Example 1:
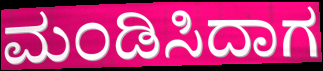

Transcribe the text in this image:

ಮಂಡಿಸಿದಾಗ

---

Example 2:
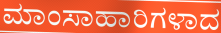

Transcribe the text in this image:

ಮಾಂಸಾಹಾರಿಗಳಾದ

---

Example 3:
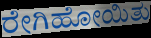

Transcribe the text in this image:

ರೇಗಿಹೋಯಿತು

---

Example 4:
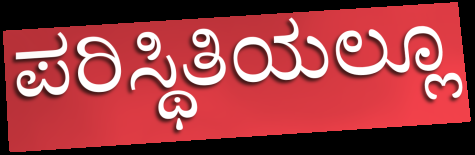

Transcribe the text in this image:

ಪರಿಸ್ಥಿತಿಯಲ್ಲೂ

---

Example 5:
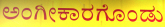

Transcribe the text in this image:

ಅಂಗೀಕಾರಗೊಂಡು